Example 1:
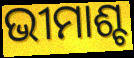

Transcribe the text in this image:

ଭୀମାଶ୍ଚ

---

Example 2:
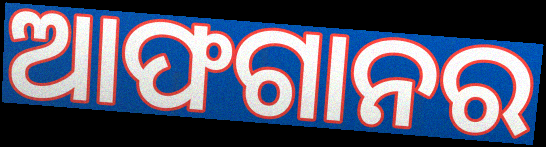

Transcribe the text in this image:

ଆଫଗାନର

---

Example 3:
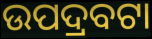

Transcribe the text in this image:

ଉପଦ୍ରବଟା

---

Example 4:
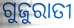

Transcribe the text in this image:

ଗୁଜୁରାତୀ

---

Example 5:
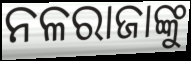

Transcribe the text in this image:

ନଳରାଜାଙ୍କୁ